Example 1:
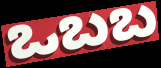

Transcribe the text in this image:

ಒಬಬ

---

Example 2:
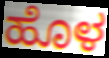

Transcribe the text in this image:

ಹೊಳ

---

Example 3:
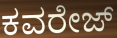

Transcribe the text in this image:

ಕವರೇಜ್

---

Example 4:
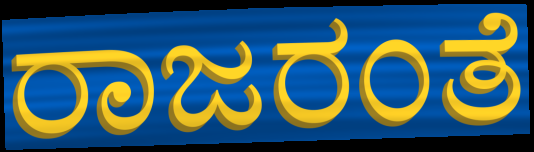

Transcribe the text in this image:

ರಾಜರಂತೆ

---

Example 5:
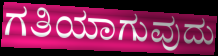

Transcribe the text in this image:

ಗತಿಯಾಗುವುದು